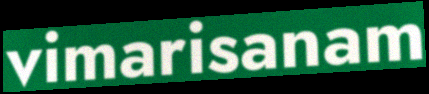
vimarisanam